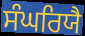
ਸੰਘਰਿਯੈ